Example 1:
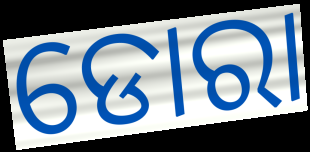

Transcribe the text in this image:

ଡୋରା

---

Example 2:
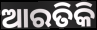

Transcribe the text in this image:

ଆରତିକି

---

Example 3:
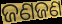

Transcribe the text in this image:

ଜଣଜଣ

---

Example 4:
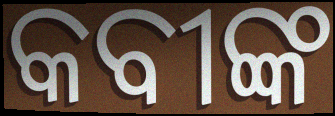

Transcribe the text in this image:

କବୀଙ୍କ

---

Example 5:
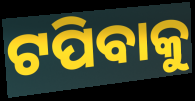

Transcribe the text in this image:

ଟପିବାକୁ